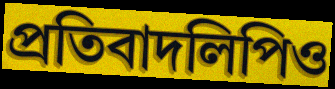
প্রতিবাদলিপিও